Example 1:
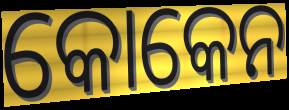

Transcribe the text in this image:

କୋକେନ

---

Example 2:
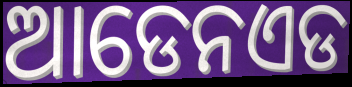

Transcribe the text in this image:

ଆଡେନଏଡ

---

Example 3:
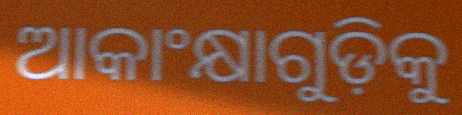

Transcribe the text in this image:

ଆକାଂକ୍ଷାଗୁଡ଼ିକୁ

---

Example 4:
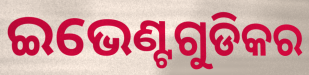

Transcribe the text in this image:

ଇଭେଣ୍ଟଗୁଡିକର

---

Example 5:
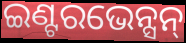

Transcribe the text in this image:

ଇଣ୍ଟରଭେନ୍ସନ୍